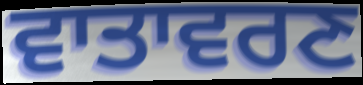
ਵਾਤਾਵਰਣ